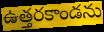
ఉత్తరకాండను